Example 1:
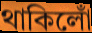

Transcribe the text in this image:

থাকিলোঁ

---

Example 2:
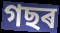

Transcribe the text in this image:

গছৰ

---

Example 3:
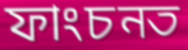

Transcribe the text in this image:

ফাংচনত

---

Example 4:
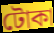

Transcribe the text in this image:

টোকা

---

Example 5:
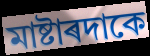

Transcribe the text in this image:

মাষ্টাৰদাকে